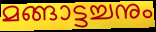
മങ്ങാട്ടച്ചനും